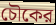
চৌকের